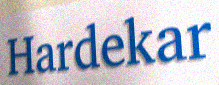
Hardekar